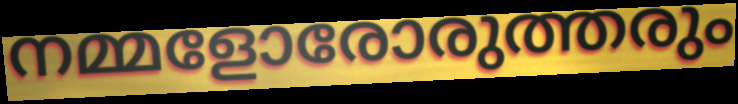
നമ്മളോരോരുത്തരും